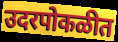
उदरपोकळीत